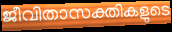
ജീവിതാസക്തികളുടെ